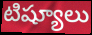
టిష్యూలు